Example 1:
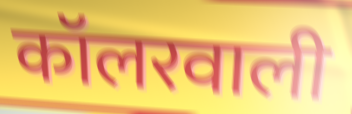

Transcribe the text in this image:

कॉलरवाली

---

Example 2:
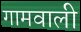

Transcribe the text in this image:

गामवाली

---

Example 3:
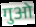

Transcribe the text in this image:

गुओ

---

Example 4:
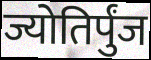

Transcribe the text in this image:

ज्योतिर्पुंज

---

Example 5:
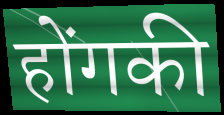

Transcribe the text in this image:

होंगकी